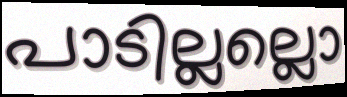
പാടില്ലല്ലൊ